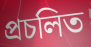
প্রচলিত